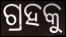
ଗ୍ରହକୁ